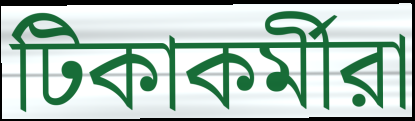
টিকাকর্মীরা